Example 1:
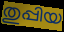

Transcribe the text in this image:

തുപ്പിയ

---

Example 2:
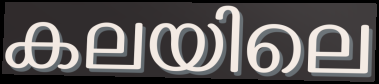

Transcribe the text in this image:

കലയിലെ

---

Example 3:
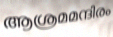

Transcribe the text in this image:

ആശ്രമമന്ദിരം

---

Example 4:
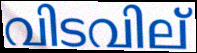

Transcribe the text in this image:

വിടവില്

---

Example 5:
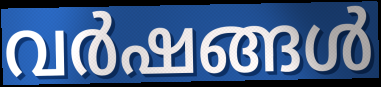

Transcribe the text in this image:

വർഷങ്ങൾ